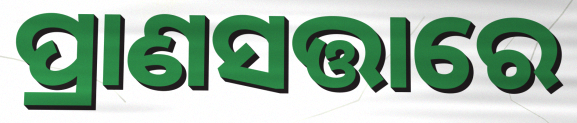
ପ୍ରାଣସତ୍ତାରେ